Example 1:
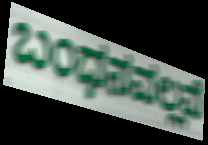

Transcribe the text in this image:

ಬಂಧನವಲ್ಲವೆ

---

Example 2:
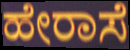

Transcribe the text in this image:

ಹೇರಾಸೆ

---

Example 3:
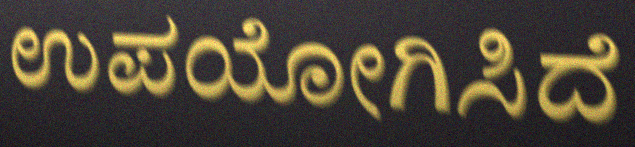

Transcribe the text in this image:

ಉಪಯೋಗಿಸಿದೆ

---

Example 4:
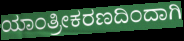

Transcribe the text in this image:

ಯಾಂತ್ರೀಕರಣದಿಂದಾಗಿ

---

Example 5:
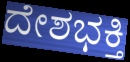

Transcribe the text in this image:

ದೇಶಭಕ್ತಿ